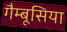
गैम्बूसिया